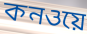
কনওয়ে